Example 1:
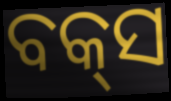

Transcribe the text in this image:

ବକ୍‍ସ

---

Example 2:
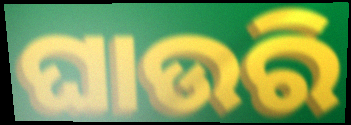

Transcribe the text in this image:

ଘାଉରି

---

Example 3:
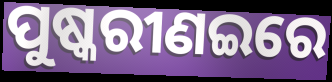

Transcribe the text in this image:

ପୁଷ୍କରୀଣଇରେ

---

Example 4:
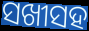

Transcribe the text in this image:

ସଖୀସହ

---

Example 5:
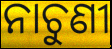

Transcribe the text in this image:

ନାଚୁଣୀ